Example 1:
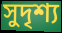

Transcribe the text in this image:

সুদৃশ্য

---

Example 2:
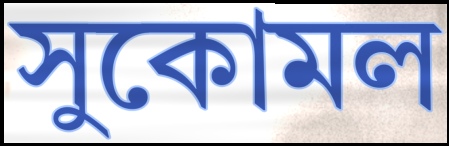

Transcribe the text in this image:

সুকোমল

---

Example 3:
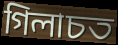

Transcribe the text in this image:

গিলাচত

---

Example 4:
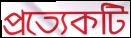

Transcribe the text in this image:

প্ৰত্যেকটি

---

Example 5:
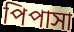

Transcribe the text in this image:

পিপাসা